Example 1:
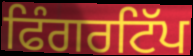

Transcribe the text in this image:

ਫਿੰਗਰਟਿੱਪ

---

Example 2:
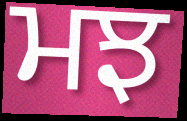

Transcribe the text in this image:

ਮਝ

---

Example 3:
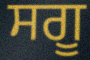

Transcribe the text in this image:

ਸਗੂ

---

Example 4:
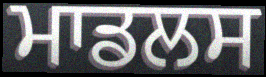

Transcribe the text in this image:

ਮਾਡਲਸ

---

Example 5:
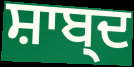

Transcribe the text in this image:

ਸ਼ਾਬ੍ਦ